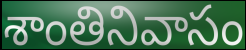
శాంతినివాసం